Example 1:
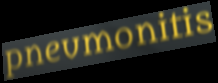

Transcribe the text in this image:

pneumonitis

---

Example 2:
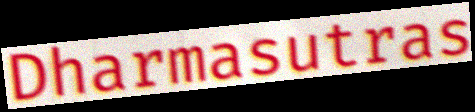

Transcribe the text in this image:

Dharmasutras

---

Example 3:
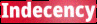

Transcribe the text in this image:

Indecency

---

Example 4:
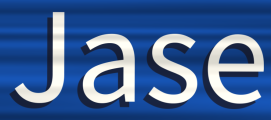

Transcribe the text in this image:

Jase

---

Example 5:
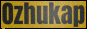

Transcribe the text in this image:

Ozhukap